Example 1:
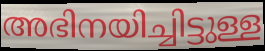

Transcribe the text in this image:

അഭിനയിച്ചിട്ടുള്ള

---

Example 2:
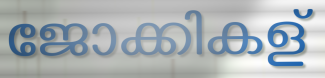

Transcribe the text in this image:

ജോക്കികള്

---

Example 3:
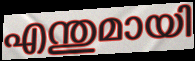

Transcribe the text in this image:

എന്തുമായി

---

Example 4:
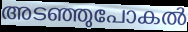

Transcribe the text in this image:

അടഞ്ഞുപോകൽ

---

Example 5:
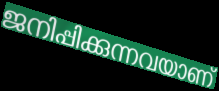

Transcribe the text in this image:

ജനിപ്പിക്കുന്നവയാണ്